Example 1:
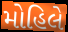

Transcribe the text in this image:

મોહિલે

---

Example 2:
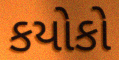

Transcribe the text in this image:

કયોકો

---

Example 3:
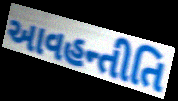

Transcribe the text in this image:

આવહન્તીતિ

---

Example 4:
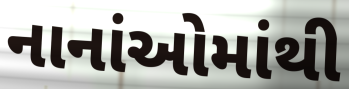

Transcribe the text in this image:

નાનાંઓમાંથી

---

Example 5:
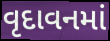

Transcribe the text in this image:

વૃદાવનમાં